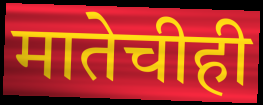
मातेचीही